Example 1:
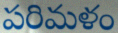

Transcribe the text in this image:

పరిమళం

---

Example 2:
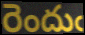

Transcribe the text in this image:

రెందుఁ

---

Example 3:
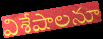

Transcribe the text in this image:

విశేషాలనూ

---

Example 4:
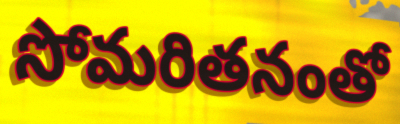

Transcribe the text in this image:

సోమరితనంతో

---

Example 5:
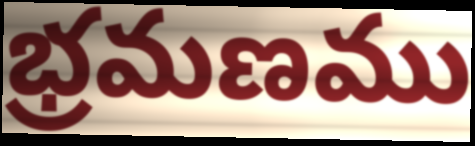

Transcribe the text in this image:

భ్రమణము